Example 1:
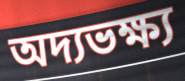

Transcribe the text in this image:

অদ্যভক্ষ্য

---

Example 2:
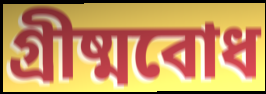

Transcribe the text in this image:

গ্রীষ্মবোধ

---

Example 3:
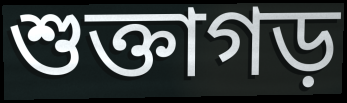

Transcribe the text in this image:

শুক্তাগড়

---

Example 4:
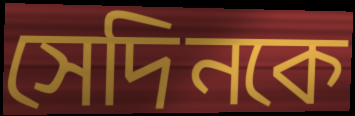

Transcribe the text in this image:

সেদিনকে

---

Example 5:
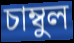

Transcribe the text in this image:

চাম্বুল